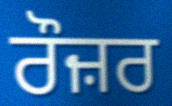
ਰੌਜ਼ਰ